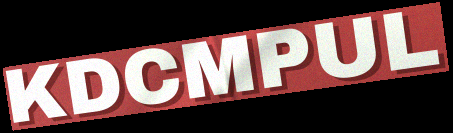
KDCMPUL